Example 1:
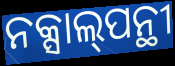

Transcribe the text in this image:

ନକ୍ସାଲ୍‌ପନ୍ଥୀ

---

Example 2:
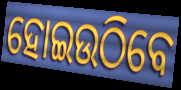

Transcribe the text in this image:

ହୋଇଉଠିବେ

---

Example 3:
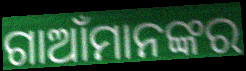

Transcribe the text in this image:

ଗାଆଁମାନଙ୍କର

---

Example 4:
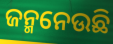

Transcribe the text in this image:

ଜନ୍ମନେଉଛି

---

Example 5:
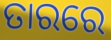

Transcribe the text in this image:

ତାରରେ